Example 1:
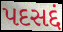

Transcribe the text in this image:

પદસદ્દં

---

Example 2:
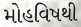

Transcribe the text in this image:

મોહવિષથી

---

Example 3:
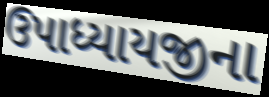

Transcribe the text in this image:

ઉપાધ્યાયજીના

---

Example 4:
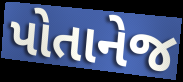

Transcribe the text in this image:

પોતાનેજ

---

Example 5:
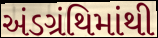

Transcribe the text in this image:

અંડગ્રંથિમાંથી